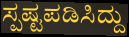
ಸ್ಪಷ್ಟಪಡಿಸಿದ್ದು